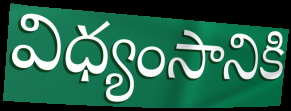
విధ్యంసానికి